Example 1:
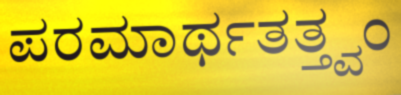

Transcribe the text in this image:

ಪರಮಾರ್ಥತತ್ತ್ವಂ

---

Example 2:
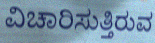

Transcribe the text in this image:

ವಿಚಾರಿಸುತ್ತಿರುವ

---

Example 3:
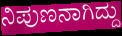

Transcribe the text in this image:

ನಿಪುಣನಾಗಿದ್ದು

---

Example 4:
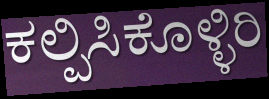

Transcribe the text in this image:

ಕಲ್ಪಿಸಿಕೊಳ್ಳಿರಿ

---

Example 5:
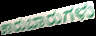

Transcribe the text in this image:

ಕಾರುಬಾರುಗಳು